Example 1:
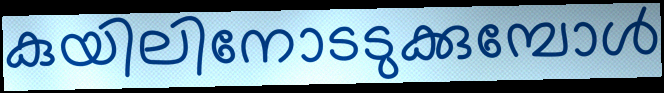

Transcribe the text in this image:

കുയിലിനോടടുക്കുമ്പോൾ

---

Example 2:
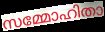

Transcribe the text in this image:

സമ്മോഹിതാ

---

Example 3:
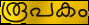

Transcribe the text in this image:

രൂപകം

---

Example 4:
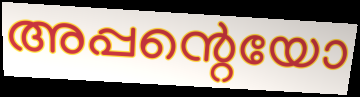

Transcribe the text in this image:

അപ്പന്റെയോ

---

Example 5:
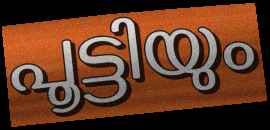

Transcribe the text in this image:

പൂട്ടിയും